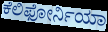
ಕೆಲಿಫೋರ್ನಿಯಾ